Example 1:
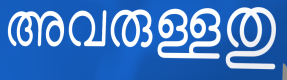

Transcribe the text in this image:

അവരുള്ളതു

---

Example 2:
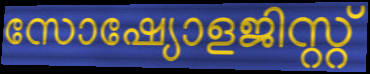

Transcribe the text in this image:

സോഷ്യോളജിസ്റ്റ്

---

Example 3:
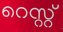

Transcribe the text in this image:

റെസ്റ്റ്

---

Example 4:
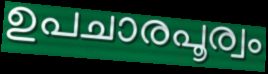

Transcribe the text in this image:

ഉപചാരപൂര്വം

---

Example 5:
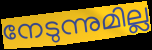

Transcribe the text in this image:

നേടുന്നുമില്ല